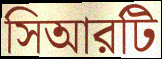
সিআরটি